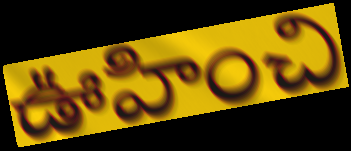
ఊహించి